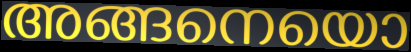
അങ്ങനെയൊ